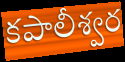
కపాలీశ్వర